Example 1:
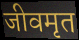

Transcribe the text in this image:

जीवमृत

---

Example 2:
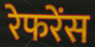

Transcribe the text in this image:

रेफरेंस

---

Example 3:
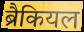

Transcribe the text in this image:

ब्रैकियल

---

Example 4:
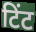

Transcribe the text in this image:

टिंट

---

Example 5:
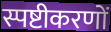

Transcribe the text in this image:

स्पष्टीकरणों